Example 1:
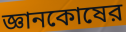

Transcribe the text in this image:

জ্ঞানকোষের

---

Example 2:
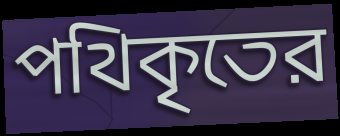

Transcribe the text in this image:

পথিকৃতের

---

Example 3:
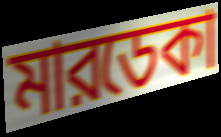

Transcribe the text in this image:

মারডেকা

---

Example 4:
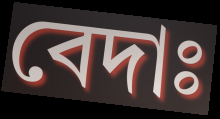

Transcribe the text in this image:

বেদাঃ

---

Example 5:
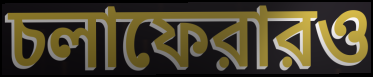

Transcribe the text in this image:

চলাফেরারও